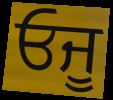
ਓਜੂ